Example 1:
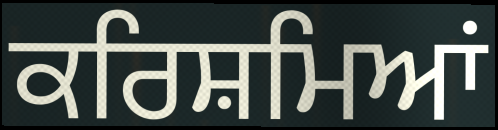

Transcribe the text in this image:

ਕਰਿਸ਼ਮਿਆਂ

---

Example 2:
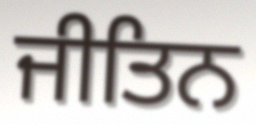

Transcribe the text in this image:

ਜੀਤਿਨ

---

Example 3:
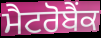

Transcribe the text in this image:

ਮੈਟਰੋਬੈਂਕ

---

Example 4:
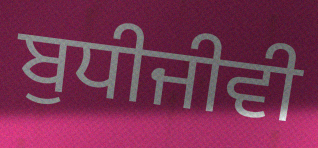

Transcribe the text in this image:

ਬੁਧੀਜੀਵੀ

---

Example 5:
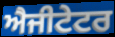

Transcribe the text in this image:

ਐਜੀਟੇਟਰ